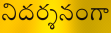
నిదర్శనంగా